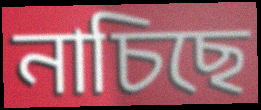
নাচিছে